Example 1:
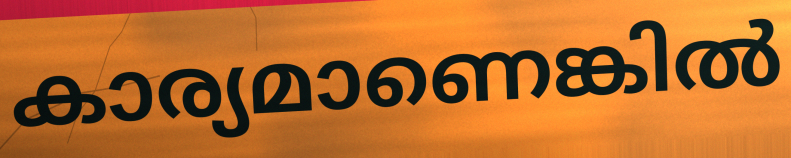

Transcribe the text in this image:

കാര്യമാണെങ്കിൽ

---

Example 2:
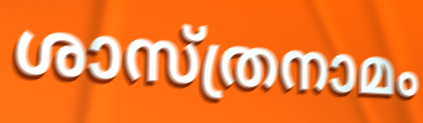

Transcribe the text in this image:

ശാസ്ത്രനാമം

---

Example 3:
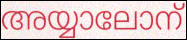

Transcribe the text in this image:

അയ്യാലോന്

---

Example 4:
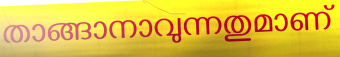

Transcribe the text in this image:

താങ്ങാനാവുന്നതുമാണ്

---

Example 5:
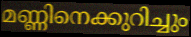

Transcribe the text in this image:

മണ്ണിനെക്കുറിച്ചും